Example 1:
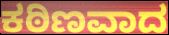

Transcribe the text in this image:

ಕಠಿಣವಾದ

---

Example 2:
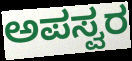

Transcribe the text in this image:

ಅಪಸ್ವರ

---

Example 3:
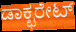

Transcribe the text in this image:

ಡಾಕ್ಟರೇಟ್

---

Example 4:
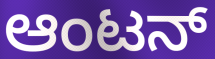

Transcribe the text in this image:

ಆಂಟನ್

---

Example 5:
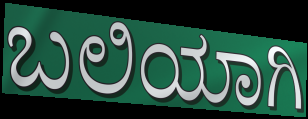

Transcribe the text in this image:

ಬಲಿಯಾಗಿ